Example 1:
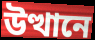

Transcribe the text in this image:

উত্থানে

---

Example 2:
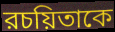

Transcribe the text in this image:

রচয়িতাকে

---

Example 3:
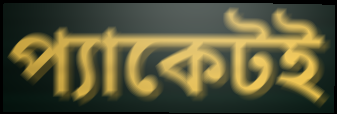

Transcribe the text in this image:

প্যাকেটই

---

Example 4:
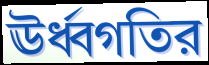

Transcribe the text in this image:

ঊর্ধ্বগতির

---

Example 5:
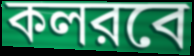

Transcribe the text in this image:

কলরবে